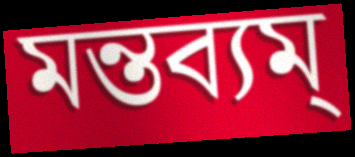
মন্তব্যম্